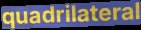
quadrilateral